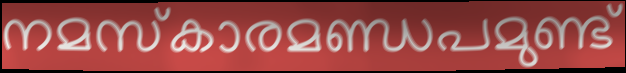
നമസ്കാരമണ്ഡപമുണ്ട്